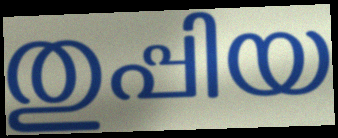
തുപ്പിയ